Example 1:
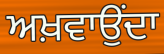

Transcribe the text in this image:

ਅਖ਼ਵਾਉਂਦਾ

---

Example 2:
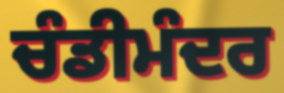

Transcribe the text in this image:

ਚੰਡੀਮੰਦਰ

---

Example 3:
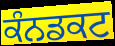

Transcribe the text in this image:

ਕੰਨਡਕਟ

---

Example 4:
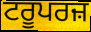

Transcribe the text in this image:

ਟਰੂਪਰਜ਼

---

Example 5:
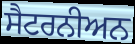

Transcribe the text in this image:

ਸੈਟਰਨੀਅਨ